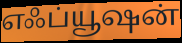
எஃப்யூஷன்